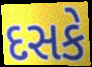
દસકે